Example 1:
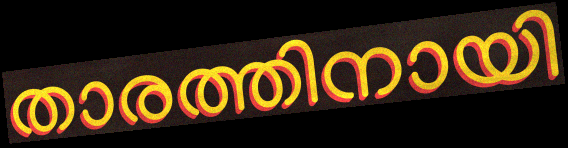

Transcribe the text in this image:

താരത്തിനായി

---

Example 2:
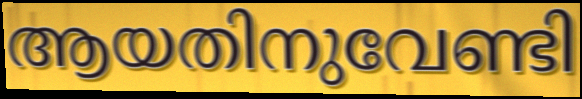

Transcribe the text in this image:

ആയതിനുവേണ്ടി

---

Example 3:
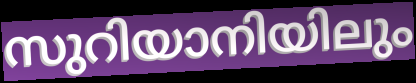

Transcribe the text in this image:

സുറിയാനിയിലും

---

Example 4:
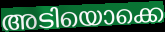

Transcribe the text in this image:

അടിയൊക്കെ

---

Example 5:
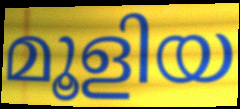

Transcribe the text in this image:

മൂളിയ